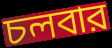
চলবার